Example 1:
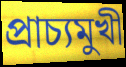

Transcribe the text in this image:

প্রাচ্যমুখী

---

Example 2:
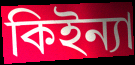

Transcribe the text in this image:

কিইন্যা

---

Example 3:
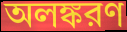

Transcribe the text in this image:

অলঙ্করণ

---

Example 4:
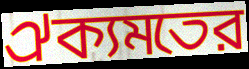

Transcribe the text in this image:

ঐক্যমতের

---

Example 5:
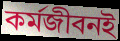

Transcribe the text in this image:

কর্মজীবনই